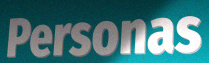
Personas